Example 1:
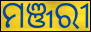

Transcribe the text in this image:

ମଞ୍ଜରୀ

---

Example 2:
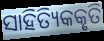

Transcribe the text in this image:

ସାହିତ୍ୟିକକୃତି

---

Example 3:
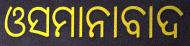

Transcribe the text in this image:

ଓସମାନାବାଦ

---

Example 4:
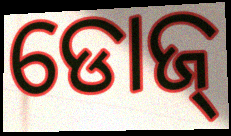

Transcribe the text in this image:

ଡୋଜ୍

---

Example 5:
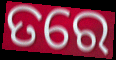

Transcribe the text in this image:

ତରେ